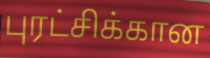
புரட்சிக்கான